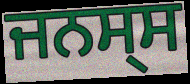
ਜਨਸ੍ਸ